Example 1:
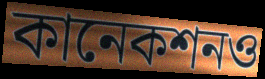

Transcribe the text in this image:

কানেকশনও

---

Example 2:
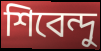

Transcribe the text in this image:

শিবেন্দু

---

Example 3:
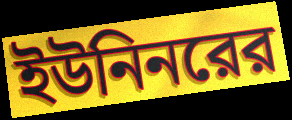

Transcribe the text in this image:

ইউনিনরের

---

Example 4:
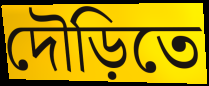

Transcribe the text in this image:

দৌড়িতে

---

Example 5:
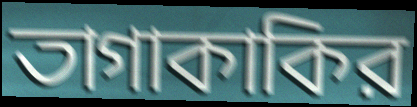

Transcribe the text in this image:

তাগাকাকির